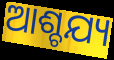
ଆଶ୍ଚଯ୍ୟ